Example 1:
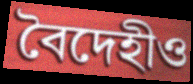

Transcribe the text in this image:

বৈদেহীও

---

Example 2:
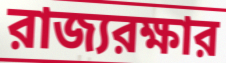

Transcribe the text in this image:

রাজ্যরক্ষার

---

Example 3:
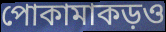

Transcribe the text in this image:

পোকামাকড়ও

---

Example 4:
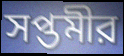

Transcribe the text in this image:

সপ্তমীর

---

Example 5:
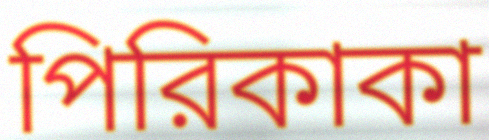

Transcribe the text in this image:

পিরিকাকা